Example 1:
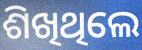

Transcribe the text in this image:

ଶିଖିଥିଲେ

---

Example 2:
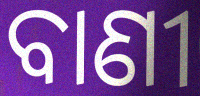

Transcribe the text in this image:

ବାଣୀ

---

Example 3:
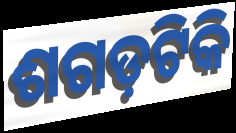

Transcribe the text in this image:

ଶଗଡ଼ଟିକି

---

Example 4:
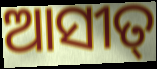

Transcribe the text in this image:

ଆସୀତ୍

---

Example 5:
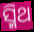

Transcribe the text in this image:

ସ୍ମିଥ